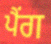
ਪੈਂਗ